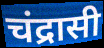
चंद्रासी